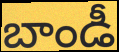
బాండీ